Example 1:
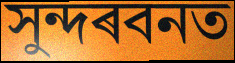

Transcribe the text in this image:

সুন্দৰবনত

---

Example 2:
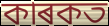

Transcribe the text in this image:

কাৰকত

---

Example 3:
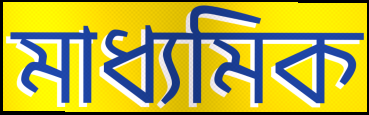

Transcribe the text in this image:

মাধ্যমিক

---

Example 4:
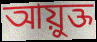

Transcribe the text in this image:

আয়ুক্ত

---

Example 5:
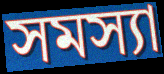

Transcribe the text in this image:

সমস্যা